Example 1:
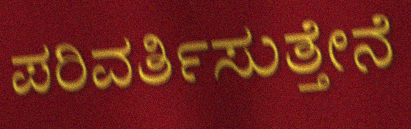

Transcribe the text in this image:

ಪರಿವರ್ತಿಸುತ್ತೇನೆ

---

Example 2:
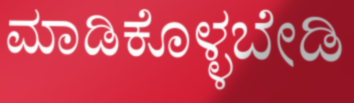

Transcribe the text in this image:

ಮಾಡಿಕೊಳ್ಳಬೇಡಿ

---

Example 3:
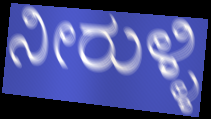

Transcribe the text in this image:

ನೀರುಳ್ಳಿ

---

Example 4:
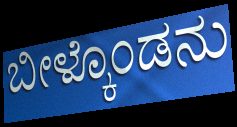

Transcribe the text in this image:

ಬೀಳ್ಕೊಂಡನು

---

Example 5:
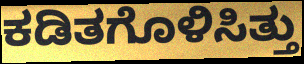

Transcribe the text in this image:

ಕಡಿತಗೊಳಿಸಿತ್ತು